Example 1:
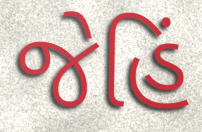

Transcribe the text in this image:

જેહિં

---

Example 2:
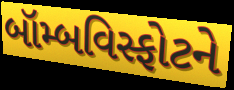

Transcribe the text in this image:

બૉમ્બવિસ્ફોટને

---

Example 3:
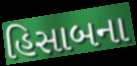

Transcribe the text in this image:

હિસાબના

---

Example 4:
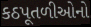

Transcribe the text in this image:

કઠપૂતળીઓનો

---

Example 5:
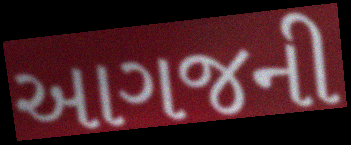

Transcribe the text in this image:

આગજની